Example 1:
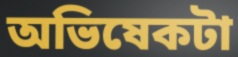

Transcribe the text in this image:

অভিষেকটা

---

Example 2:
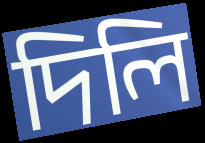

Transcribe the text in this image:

দিলি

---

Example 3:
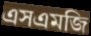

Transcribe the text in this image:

এসএমজি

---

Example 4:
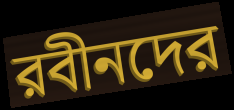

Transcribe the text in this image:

রবীনদের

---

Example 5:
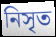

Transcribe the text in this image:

নিসৃত